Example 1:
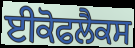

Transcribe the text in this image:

ਈਕੋਫਲੈਕਸ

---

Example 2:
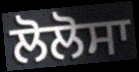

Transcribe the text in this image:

ਲੋਲੋਸਾ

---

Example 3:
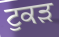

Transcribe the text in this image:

ਟੁਕੜ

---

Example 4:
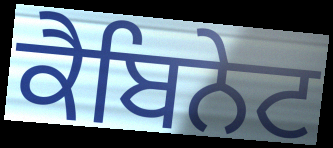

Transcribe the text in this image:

ਕੈਬਿਨੇਟ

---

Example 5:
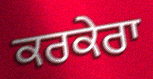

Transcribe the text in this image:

ਕਰਕੇਰਾ